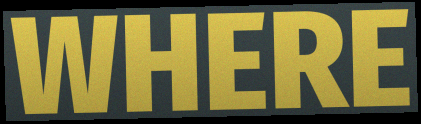
WHERE